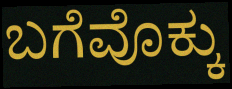
ಬಗೆವೊಕ್ಕು